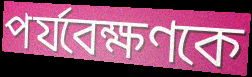
পর্যবেক্ষণকে